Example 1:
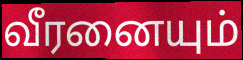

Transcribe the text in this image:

வீரனையும்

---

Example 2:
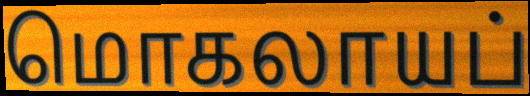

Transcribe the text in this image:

மொகலாயப்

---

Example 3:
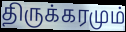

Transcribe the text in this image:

திருக்கரமும்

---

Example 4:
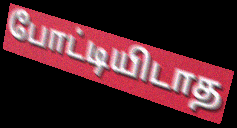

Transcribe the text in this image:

போட்டியிடாத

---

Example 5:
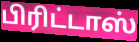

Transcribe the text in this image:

பிரிட்டாஸ்